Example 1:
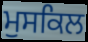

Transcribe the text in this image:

ਮੁਸਕਿਲ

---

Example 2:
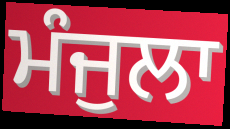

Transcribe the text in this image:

ਮੰਜੁਲਾ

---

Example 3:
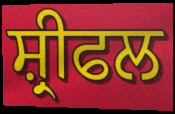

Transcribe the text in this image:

ਸ਼੍ਰੀਫਲ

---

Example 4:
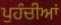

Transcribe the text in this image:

ਪੁਹੰਚੀਆਂ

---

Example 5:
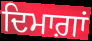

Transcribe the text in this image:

ਦਿਮਾਗ਼ਾਂ